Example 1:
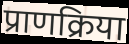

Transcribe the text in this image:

प्राणक्रिया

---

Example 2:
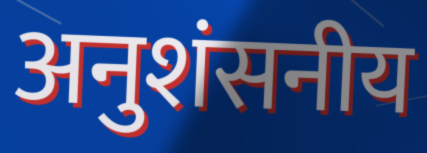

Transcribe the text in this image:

अनुशंसनीय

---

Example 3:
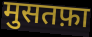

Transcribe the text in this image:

मुसतफ़ा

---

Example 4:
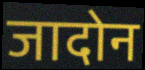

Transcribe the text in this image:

जादोन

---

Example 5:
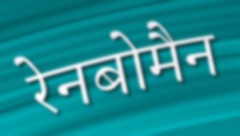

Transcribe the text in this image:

रेनबोमैन